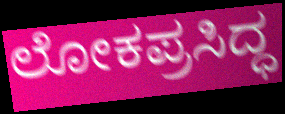
ಲೋಕಪ್ರಸಿದ್ಧ